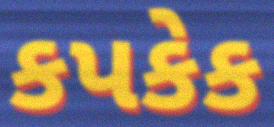
કપકેક